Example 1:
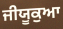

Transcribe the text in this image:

ਜੀਯੂਕੁਆ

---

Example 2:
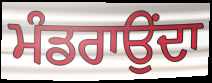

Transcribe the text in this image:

ਮੰਡਰਾਉਂਦਾ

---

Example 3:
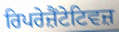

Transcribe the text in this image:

ਰਿਪਰੇਜ਼ੈਂਟੇਟਿਵਜ਼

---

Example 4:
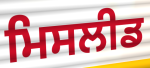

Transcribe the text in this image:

ਮਿਸਲੀਡ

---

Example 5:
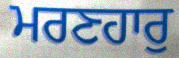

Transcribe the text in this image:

ਮਰਣਹਾਰੁ